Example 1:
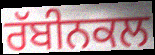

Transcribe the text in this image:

ਰੱਬੀਨਕਲ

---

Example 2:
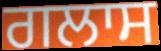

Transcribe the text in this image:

ਗਲਾਸ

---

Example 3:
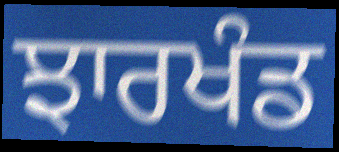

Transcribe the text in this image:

ਝਾਰਖੰਡ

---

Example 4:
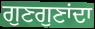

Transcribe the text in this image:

ਗੁਣਗੁਣਾਂਦਾ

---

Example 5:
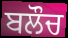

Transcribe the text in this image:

ਬਲੌਚ